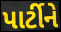
પાર્ટીને